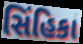
સિંહિકા